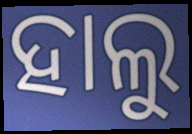
ହାଲୁ